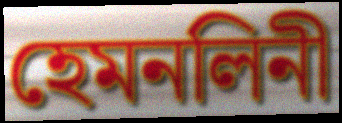
হেমনলিনী